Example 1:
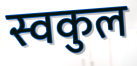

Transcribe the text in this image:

स्वकुल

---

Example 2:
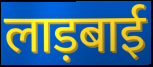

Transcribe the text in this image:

लाड़बाई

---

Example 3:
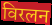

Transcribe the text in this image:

विरलन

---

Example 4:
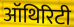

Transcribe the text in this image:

ऑथिरिटी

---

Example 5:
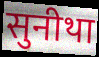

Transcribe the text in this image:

सुनीथा